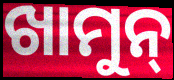
ଖାମୁନ୍